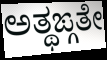
ಅತ್ಥಙ್ಗತೇ